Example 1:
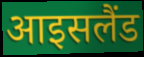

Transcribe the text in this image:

आइसलैंड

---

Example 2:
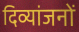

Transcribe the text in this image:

दिव्यांजनों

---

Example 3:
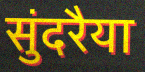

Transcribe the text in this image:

सुंदरैया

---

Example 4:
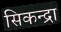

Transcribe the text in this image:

सिकन्द्रा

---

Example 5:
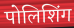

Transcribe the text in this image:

पोलिशिंग